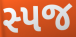
સ્પજ